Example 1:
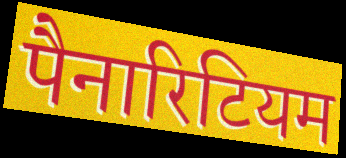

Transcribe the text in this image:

पैनारिटियम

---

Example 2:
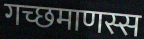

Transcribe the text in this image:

गच्छमाणस्स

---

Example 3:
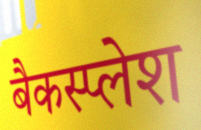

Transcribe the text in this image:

बैकस्प्लेश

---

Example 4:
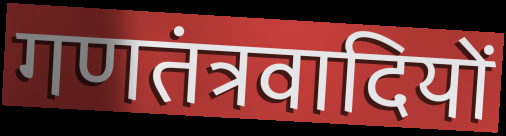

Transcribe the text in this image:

गणतंत्रवादियों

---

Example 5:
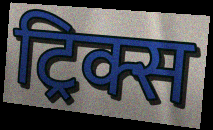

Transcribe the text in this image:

ट्रिक्स